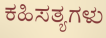
ಕಹಿಸತ್ಯಗಳು